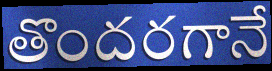
తొందరగానే